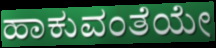
ಹಾಕುವಂತೆಯೇ